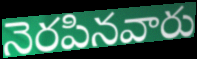
నెరపినవారు